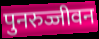
पुनरुज्जीवन